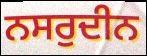
ਨਸਰੁਦੀਨ